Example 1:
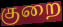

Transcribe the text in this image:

குறை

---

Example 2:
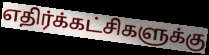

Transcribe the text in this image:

எதிர்க்கட்சிகளுக்கு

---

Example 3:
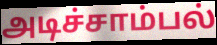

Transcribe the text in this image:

அடிச்சாம்பல்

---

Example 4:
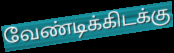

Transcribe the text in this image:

வேண்டிக்கிடக்கு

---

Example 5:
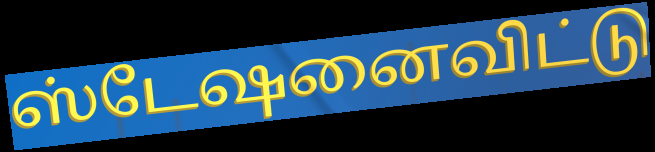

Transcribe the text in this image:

ஸ்டேஷனைவிட்டு